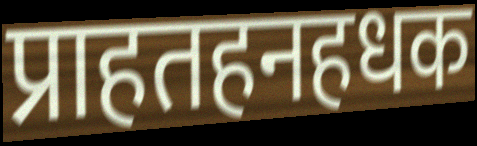
प्राहतहनहधक